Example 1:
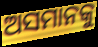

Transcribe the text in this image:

ଅସମାନକୁ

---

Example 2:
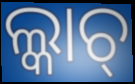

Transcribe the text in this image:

ଲ୍କାଚ୍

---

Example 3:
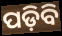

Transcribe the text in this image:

ପଡ଼ିବି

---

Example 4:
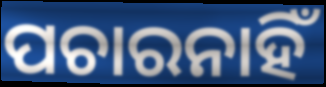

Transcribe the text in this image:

ପଚାରନାହିଁ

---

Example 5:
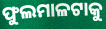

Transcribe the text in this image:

ଫୁଲମାଳଟାକୁ